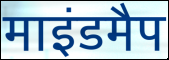
माइंडमैप